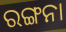
ରଙ୍ଗନା